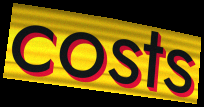
costs